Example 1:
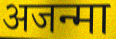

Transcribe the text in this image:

अजन्मा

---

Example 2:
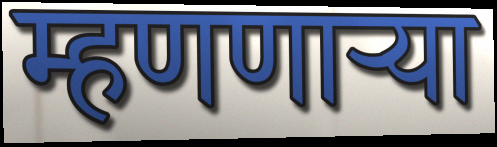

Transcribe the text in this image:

म्हणणाऱ्या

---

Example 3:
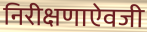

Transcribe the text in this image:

निरीक्षणाऐवजी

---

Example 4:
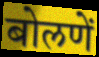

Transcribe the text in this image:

बोलणें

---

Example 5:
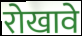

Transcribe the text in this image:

रोखावे